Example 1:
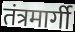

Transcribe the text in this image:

तंत्रमार्गी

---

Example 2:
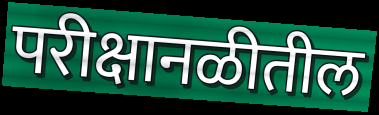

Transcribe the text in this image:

परीक्षानळीतील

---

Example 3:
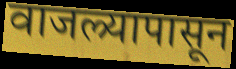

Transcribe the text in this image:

वाजल्यापासून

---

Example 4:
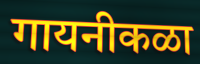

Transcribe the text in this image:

गायनीकळा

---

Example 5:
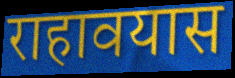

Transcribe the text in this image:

राहावयास